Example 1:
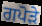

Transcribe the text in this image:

ਗਪੋੜੇ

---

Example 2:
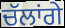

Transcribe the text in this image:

ਚੱਲਾਂਗੇ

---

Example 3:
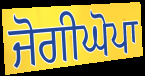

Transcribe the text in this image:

ਜੋਗੀਘੋਪਾ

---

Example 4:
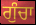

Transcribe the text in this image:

ਗੁੰਚਾ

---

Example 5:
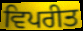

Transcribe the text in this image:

ਵਿਪਰੀਤ